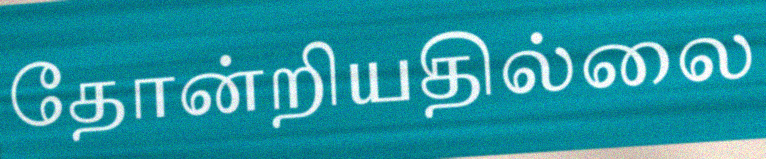
தோன்றியதில்லை